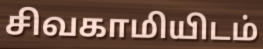
சிவகாமியிடம்